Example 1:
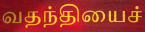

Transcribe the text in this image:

வதந்தியைச்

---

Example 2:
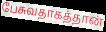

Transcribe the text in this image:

பேசுவதாகத்தான்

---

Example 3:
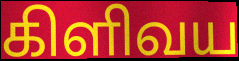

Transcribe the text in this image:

கிளிவய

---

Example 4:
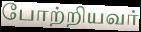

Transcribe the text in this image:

போற்றியவர்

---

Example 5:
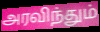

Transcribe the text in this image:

அரவிந்தும்